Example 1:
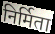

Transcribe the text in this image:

निर्मिता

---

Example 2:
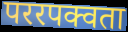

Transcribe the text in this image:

पररपक्वता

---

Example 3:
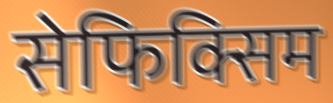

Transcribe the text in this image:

सेफिक्सिम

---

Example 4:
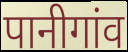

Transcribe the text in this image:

पानीगांव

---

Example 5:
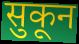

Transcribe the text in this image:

सुकून